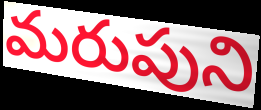
మరుపుని